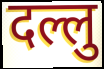
दल्लु